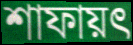
শাফায়ৎ